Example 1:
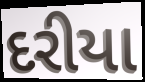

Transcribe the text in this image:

દરીયા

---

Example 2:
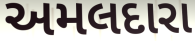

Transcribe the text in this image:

અમલદારા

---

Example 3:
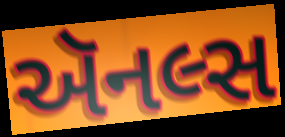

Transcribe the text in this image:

ઍનલ્સ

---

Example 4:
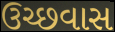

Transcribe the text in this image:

ઉચ્છવાસ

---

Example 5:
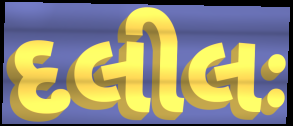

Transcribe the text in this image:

દલીલઃ